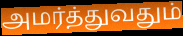
அமர்த்துவதும்